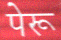
पेरू